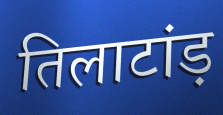
तिलाटांड़